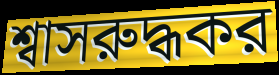
শ্বাসরুদ্ধকর